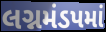
લગ્નમંડપમાં